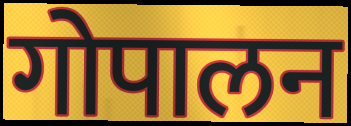
गोपालन